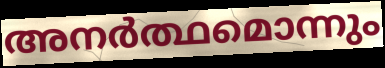
അനർത്ഥമൊന്നും